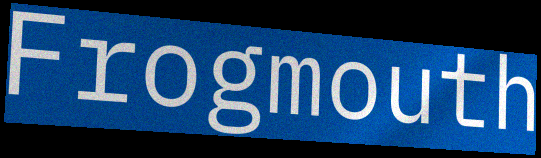
Frogmouth